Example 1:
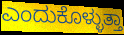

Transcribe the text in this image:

ಎಂದುಕೊಳ್ಳುತ್ತಾ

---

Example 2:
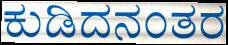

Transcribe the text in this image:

ಕುಡಿದನಂತರ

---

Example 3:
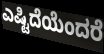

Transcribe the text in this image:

ಎಷ್ಟಿದೆಯೆಂದರೆ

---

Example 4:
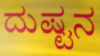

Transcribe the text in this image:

ದುಷ್ಟನ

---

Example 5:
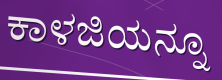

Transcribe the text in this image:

ಕಾಳಜಿಯನ್ನೂ